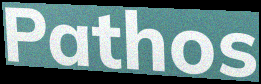
Pathos